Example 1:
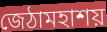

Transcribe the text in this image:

জেঠামহাশয়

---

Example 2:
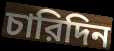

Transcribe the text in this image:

চারিদিন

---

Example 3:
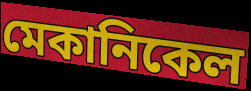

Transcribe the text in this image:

মেকানিকেল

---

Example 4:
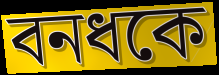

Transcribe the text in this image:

বনধকে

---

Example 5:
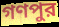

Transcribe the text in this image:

গণপুর